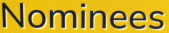
Nominees